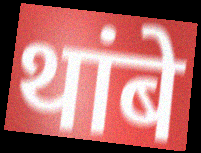
थांबे